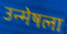
उन्मेषला